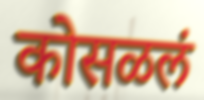
कोसळलं